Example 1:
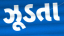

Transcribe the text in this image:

ઝૂડતા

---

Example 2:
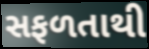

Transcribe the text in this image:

સફળતાથી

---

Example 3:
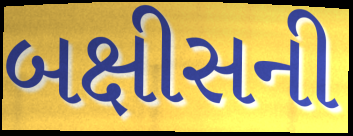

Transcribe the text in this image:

બક્ષીસની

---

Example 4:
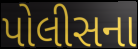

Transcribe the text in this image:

પોલીસના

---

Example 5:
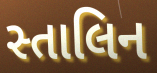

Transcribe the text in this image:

સ્તાલિન